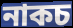
নাকচ